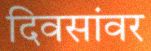
दिवसांवर